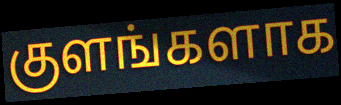
குளங்களாக